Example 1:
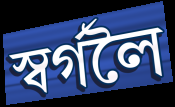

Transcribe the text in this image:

স্বৰ্গলৈ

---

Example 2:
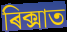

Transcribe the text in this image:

ৰিক্সাত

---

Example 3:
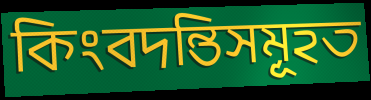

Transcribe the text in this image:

কিংবদন্তিসমূহত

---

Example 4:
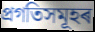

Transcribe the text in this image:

প্ৰগতিসমূহৰ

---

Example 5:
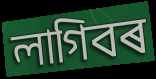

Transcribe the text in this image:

লাগিবৰ